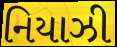
નિયાઝી